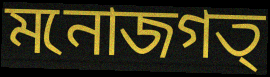
মনোজগত্